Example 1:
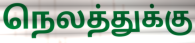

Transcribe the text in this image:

நெலத்துக்கு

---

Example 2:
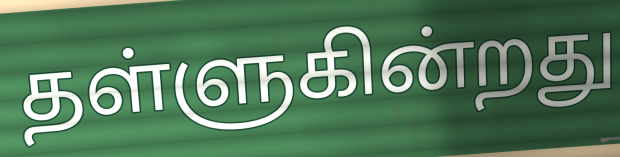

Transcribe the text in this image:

தள்ளுகின்றது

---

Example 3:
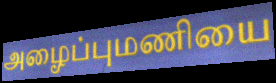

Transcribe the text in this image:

அழைப்புமணியை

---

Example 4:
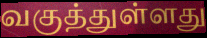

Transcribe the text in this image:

வகுத்துள்ளது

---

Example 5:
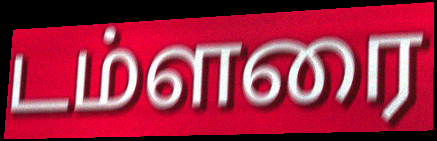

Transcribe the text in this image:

டம்ளரை